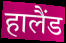
हालैंड